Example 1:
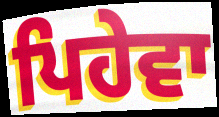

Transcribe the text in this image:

ਪਿਹੇਵਾ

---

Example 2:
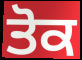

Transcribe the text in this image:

ਤੋਕ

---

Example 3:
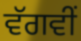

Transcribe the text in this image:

ਵੱਗਵੀਂ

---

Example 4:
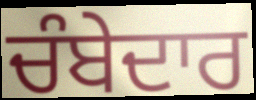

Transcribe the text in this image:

ਚੰਬੇਦਾਰ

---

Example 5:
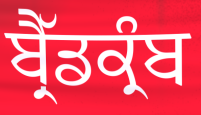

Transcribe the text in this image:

ਬ੍ਰੈੱਡਕ੍ਰੰਬ